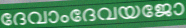
ദേവാംദേവയജോ